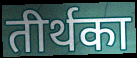
तीर्थका